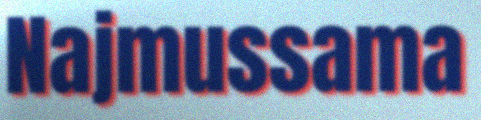
Najmussama